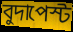
বুদাপেস্ট